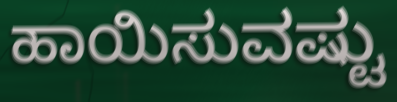
ಹಾಯಿಸುವಷ್ಟು